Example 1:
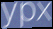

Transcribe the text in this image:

ypx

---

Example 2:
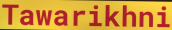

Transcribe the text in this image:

Tawarikhni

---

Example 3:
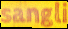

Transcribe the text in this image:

sangli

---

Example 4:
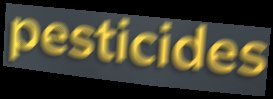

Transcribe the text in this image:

pesticides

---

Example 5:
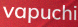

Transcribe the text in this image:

vapuchi